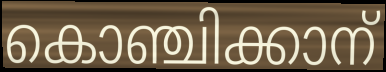
കൊഞ്ചിക്കാന്